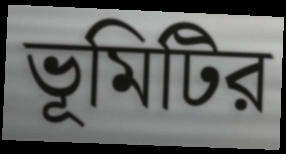
ভূমিটির